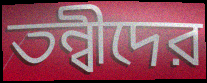
তন্বীদের